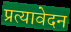
प्रत्यावेदन